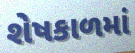
શેષકાળમાં